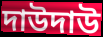
দাউদাউ